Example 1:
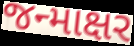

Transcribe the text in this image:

જન્માક્ષર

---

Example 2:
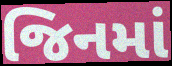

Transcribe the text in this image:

જિનમાં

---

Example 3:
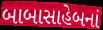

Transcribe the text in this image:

બાબાસાહેબનાં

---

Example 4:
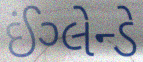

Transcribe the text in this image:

ઈંગ્લેન્ડે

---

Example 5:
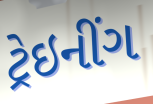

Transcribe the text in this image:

ટ્રેઇનીંગ